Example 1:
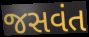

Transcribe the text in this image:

જસવંત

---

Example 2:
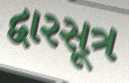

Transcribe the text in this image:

દ્વારસૂત્ર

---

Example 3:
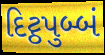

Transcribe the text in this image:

દિટ્ઠપુબ્બં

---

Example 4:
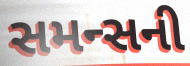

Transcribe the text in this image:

સમન્સની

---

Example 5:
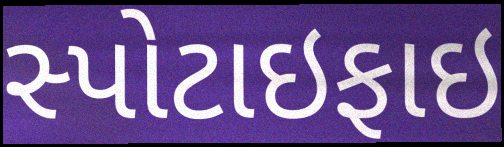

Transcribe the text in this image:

સ્પોટાઇફાઇ